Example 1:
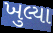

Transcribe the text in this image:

ખુલ્યા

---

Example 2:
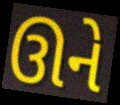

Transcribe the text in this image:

ઊને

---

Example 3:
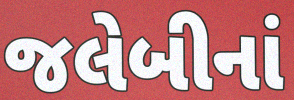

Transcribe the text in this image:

જલેબીનાં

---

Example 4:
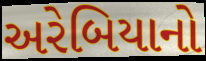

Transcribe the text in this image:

અરેબિયાનો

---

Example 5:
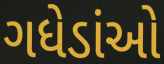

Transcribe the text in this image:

ગધેડાંઓ